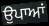
ਉਪਾਆਂ